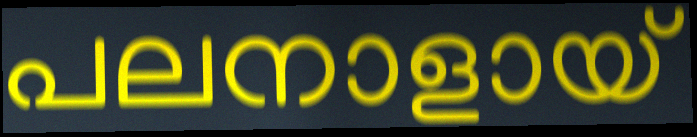
പലനാളായ്